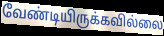
வேண்டியிருக்கவில்லை